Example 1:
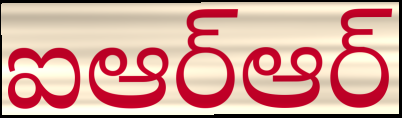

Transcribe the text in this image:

ఐఆర్ఆర్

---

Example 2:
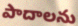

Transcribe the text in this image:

పాదాలను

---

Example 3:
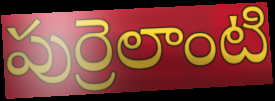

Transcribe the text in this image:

పుర్రెలాంటి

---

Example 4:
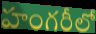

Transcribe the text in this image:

హంగరీలో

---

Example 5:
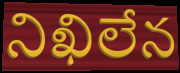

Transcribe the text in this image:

నిఖిలేన